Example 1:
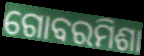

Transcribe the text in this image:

ଗୋବରମିଶା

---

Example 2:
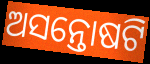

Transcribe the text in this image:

ଅସନ୍ତୋଷଟି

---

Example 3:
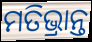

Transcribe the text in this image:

ମତିଭ୍ରାନ୍ତ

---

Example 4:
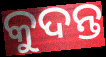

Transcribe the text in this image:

କୁଦନ୍ତ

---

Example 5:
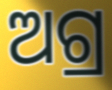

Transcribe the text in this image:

ଅଗ୍ର